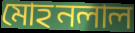
মোহনলাল